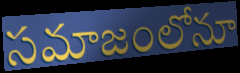
సమాజంలోనూ